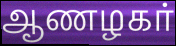
ஆணழகர்